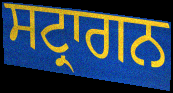
ਸਟ੍ਰਾਗਨ